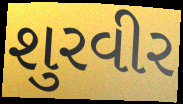
શુરવીર